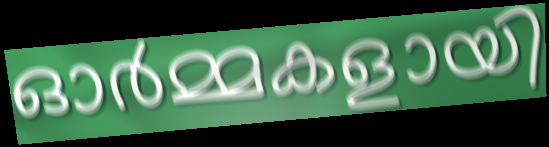
ഓർമ്മകളായി